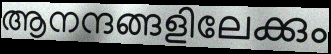
ആനന്ദങ്ങളിലേക്കും